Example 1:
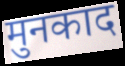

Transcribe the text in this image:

मुनकाद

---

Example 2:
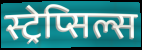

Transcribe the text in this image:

स्ट्रेप्सिल्स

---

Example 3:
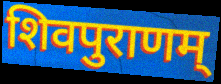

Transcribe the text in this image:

शिवपुराणम्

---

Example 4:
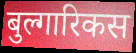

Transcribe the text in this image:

बुल्गारिकस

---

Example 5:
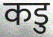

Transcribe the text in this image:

कडु